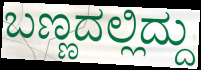
ಬಣ್ಣದಲ್ಲಿದ್ದು